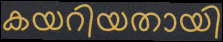
കയറിയതായി